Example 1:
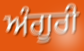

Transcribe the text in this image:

ਅੰਗੂਰੀ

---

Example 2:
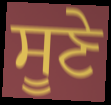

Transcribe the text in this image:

ਸੂਣੇ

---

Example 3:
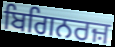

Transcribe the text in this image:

ਬਿਗਿਨਰਜ਼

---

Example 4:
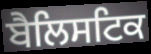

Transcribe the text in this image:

ਬੈਲਿਸਟਿਕ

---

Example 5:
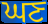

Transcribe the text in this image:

ਘਣ